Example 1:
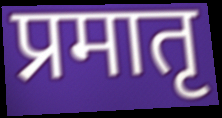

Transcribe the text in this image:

प्रमातृ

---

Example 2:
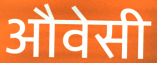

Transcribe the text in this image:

औवेसी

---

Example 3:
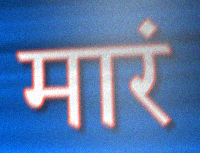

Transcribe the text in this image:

मारं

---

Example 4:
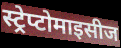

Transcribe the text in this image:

स्ट्रेप्टोमाइसीज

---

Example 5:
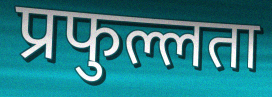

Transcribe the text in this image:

प्रफुल्लता